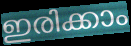
ഇരിക്കാം